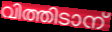
വിത്തിടാന്